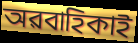
অৱবাহিকাই